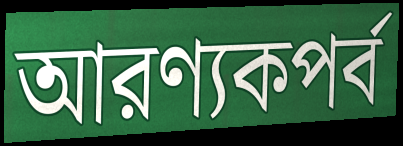
আরণ্যকপর্ব